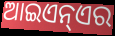
ଆଇଏନ୍ଏର